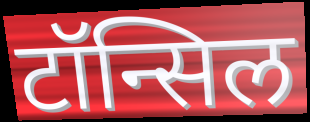
टॉन्सिल